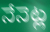
నేనెట్ల